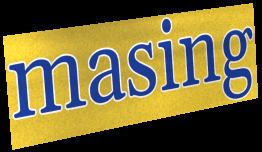
masing